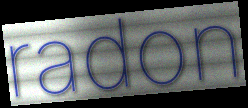
radon